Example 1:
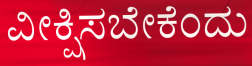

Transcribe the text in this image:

ವೀಕ್ಷಿಸಬೇಕೆಂದು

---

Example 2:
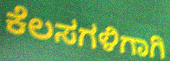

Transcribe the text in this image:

ಕೆಲಸಗಳಿಗಾಗಿ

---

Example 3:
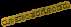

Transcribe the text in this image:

ರೂಪಾಂತರಗೊಂಡರು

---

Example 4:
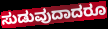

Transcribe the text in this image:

ಸುಡುವುದಾದರೂ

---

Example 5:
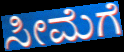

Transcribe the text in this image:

ಸೀಮೆಗೆ